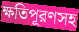
ক্ষতিপূরণসহ